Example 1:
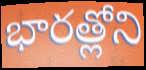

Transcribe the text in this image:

భారత్లోని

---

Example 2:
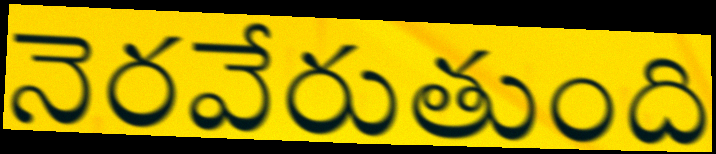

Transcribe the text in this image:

నెరవేరుతుంది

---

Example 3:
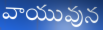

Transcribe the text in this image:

వాయువున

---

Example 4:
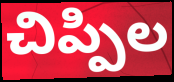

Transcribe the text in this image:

చిప్పిల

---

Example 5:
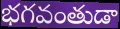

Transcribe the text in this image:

భగవంతుడా